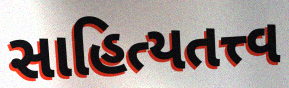
સાહિત્યતત્ત્વ